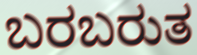
ಬರಬರುತ